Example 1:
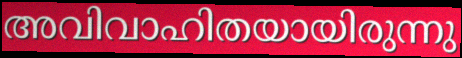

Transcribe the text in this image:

അവിവാഹിതയായിരുന്നു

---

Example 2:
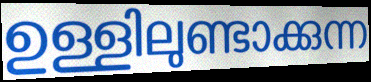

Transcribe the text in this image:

ഉള്ളിലുണ്ടാക്കുന്ന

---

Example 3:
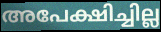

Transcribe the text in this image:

അപേക്ഷിച്ചില്ല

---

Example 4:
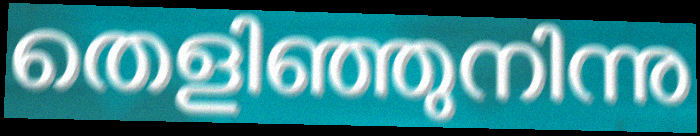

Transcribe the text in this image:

തെളിഞ്ഞുനിന്നു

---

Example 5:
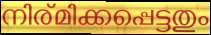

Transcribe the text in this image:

നിര്മിക്കപ്പെട്ടതും